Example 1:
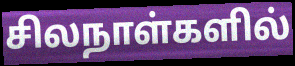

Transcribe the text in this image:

சிலநாள்களில்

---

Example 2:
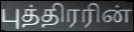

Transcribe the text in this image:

புத்திரரின்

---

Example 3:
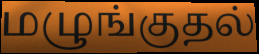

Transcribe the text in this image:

மழுங்குதல்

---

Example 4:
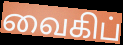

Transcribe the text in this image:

வைகிப்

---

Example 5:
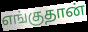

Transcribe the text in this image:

எங்குதான்